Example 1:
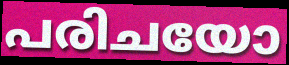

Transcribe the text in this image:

പരിചയോ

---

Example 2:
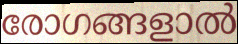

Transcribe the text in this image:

രോഗങ്ങളാൽ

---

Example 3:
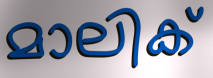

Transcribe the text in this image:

മാലിക്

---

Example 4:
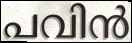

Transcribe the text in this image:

പവിൻ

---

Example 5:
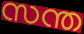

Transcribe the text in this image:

സന്ത